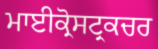
ਮਾਈਕ੍ਰੋਸਟ੍ਰਕਚਰ